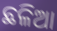
ଛଳିଆ